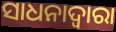
ସାଧନାଦ୍ଵାରା